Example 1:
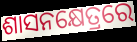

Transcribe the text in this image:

ଶାସନକ୍ଷେତ୍ରରେ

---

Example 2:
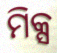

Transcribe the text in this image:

ମିକ୍ସ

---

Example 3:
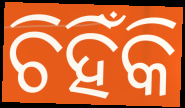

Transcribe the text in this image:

ଚିହିଁକି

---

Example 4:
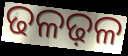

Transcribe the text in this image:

ଢଳଢ଼ଳ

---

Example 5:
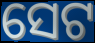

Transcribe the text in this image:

ସେଟ